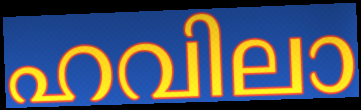
ഹവിലാ